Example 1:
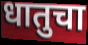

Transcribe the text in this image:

धातुचा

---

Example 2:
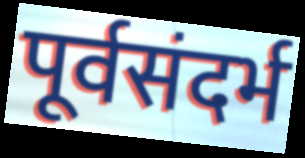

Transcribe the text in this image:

पूर्वसंदर्भ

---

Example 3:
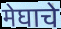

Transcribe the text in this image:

मेघाचे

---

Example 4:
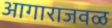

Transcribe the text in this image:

आगाराजवळ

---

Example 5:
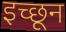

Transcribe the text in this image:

इच्छून